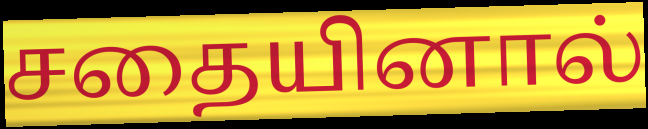
சதையினால்